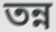
তন্ন